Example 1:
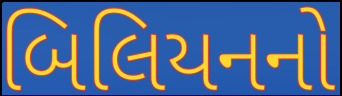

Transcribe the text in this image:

બિલિયનનો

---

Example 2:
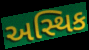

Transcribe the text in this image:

અસ્થિક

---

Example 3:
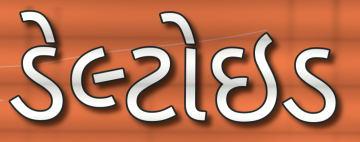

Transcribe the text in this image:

ડેલ્ટોઇડ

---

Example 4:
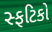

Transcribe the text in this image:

સ્ફટિકો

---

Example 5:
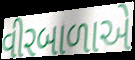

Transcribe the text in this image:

વીરબાળાએ